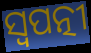
ସ୍ୱପତ୍ନୀ